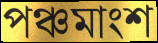
পঞ্চমাংশ